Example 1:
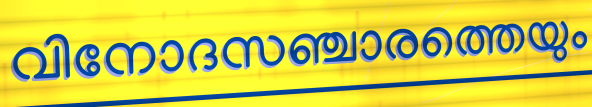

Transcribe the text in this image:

വിനോദസഞ്ചാരത്തെയും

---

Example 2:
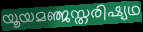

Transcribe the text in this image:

യൂയമഞ്ജസ്തരിഷ്യഥ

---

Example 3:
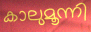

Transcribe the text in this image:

കാലുമൂന്നി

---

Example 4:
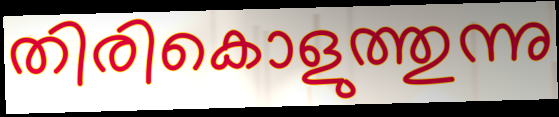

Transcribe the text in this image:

തിരികൊളുത്തുന്നു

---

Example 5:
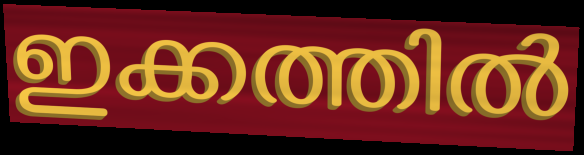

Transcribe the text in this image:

ഇക്കത്തിൽ